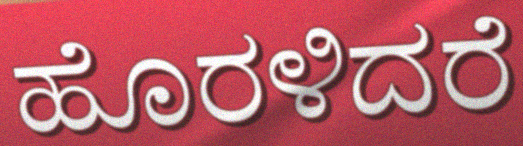
ಹೊರಳಿದರೆ